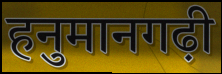
हनुमानगढ़ी